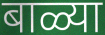
बाळ्या